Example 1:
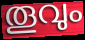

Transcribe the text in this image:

തൂവും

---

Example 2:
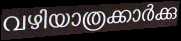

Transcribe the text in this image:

വഴിയാത്രക്കാർക്കു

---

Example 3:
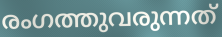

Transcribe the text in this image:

രംഗത്തുവരുന്നത്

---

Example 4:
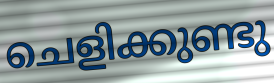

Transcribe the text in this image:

ചെളിക്കുണ്ടു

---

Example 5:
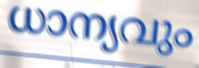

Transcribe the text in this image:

ധാന്യവും